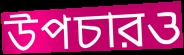
উপচারও